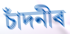
চাঁদনীৰ